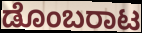
ಡೊಂಬರಾಟ